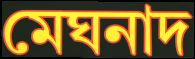
মেঘনাদ